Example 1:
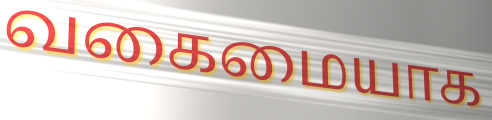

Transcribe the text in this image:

வகைமையாக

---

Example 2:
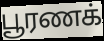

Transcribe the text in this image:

பூரணக்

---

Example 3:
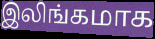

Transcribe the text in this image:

இலிங்கமாக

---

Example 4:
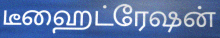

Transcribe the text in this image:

டீஹைட்ரேஷன்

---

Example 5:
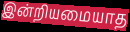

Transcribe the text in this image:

இன்றியமையாத